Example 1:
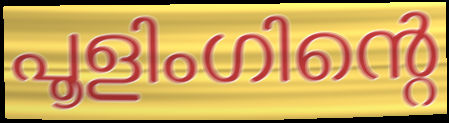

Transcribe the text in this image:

പൂളിംഗിന്റെ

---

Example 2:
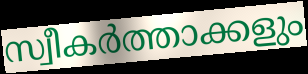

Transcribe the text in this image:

സ്വീകർത്താക്കളും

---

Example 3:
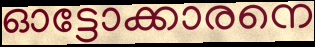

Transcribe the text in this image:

ഓട്ടോക്കാരനെ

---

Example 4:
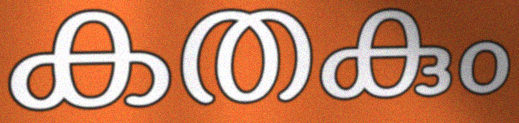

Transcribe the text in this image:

കതകും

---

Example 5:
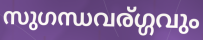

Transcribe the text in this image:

സുഗന്ധവര്ഗ്ഗവും